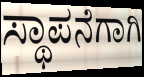
ಸ್ಥಾಪನೆಗಾಗಿ